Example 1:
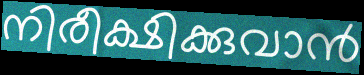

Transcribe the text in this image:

നിരീക്ഷിക്കുവാൻ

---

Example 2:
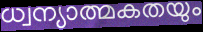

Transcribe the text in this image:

ധ്വന്യാത്മകതയും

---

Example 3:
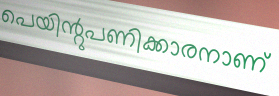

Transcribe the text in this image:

പെയിന്റുപണിക്കാരനാണ്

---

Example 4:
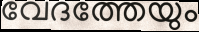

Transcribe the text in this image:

വേദത്തേയും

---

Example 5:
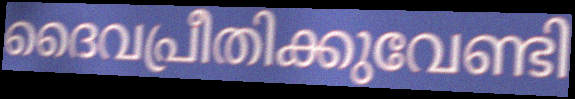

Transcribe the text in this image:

ദൈവപ്രീതിക്കുവേണ്ടി